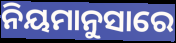
ନିୟମାନୁସାରେ